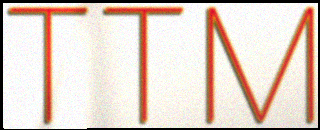
TTM